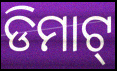
ଡିମାଟ୍